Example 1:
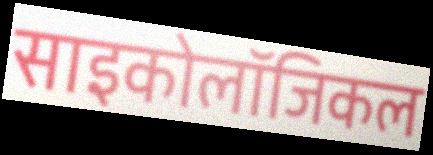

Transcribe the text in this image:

साइकोलॉजिकल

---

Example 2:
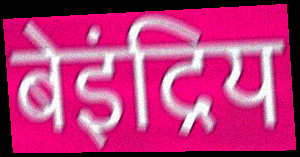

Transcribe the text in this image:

बेइंद्रिय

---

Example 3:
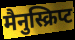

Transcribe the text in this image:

मैनुस्क्रिप्ट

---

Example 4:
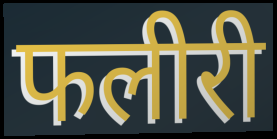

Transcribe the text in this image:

फलीरी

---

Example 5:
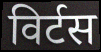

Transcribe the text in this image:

विर्टस